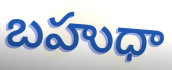
బహుధా